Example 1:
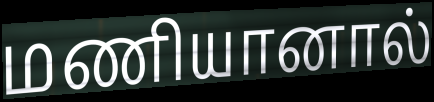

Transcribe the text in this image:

மணியானால்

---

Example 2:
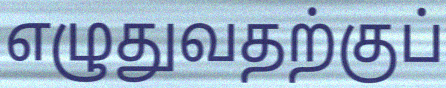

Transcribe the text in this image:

எழுதுவதற்குப்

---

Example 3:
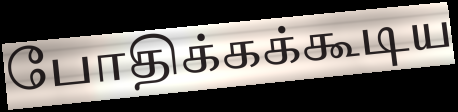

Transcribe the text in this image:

போதிக்கக்கூடிய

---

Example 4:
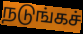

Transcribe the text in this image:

நடுங்கச்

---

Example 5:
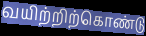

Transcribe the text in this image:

வயிற்றிற்கொண்டு